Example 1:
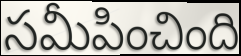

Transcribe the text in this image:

సమీపించింది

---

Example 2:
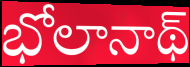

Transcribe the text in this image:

భోలానాథ్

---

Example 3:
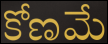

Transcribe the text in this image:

కోణమే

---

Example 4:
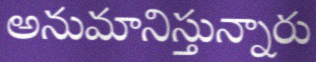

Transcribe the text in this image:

అనుమానిస్తున్నారు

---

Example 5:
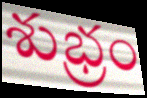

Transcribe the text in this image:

శుభ్రం